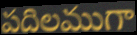
పదిలముగా